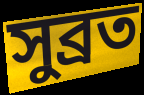
সুব্ৰত